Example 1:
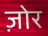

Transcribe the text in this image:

ज़ोर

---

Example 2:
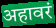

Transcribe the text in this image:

अहावरं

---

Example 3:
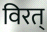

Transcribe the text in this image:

विरत्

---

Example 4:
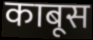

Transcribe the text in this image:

काबूस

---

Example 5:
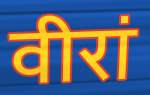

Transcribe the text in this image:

वीरां